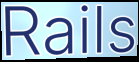
Rails